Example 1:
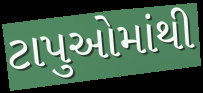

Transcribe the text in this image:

ટાપુઓમાંથી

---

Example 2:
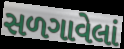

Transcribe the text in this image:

સળગાવેલાં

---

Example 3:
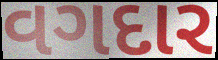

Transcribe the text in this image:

વગદાર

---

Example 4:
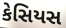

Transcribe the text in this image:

કેસિયસ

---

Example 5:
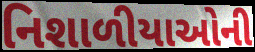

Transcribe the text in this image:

નિશાળીયાઓની